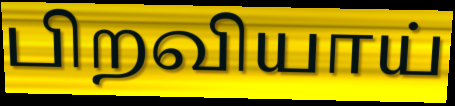
பிறவியாய்